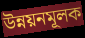
উন্নয়নমূলক